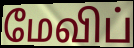
மேவிப்